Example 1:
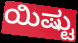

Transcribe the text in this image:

ಯಿಷ್ಟು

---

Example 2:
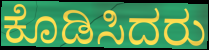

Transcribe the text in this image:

ಕೊಡಿಸಿದರು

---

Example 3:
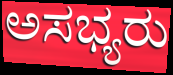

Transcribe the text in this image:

ಅಸಭ್ಯರು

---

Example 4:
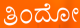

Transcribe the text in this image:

ತಿಂದೋ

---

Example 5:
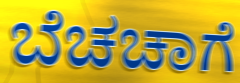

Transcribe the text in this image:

ಬೆಚಚಾಗೆ